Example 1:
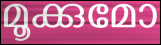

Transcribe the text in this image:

മൂക്കുമോ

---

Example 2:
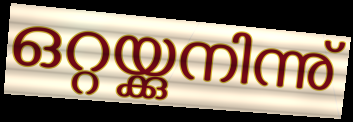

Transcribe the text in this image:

ഒറ്റയ്ക്കുനിന്നു്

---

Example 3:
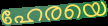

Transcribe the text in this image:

ഹേരയെ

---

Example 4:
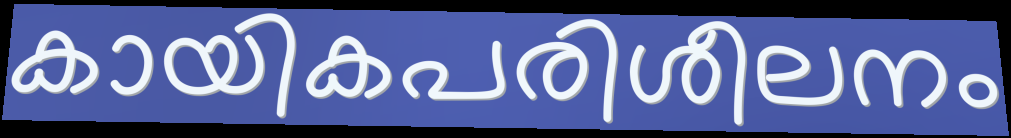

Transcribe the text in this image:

കായികപരിശീലനം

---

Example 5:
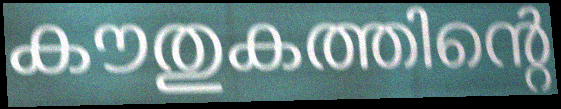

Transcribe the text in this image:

കൗതുകത്തിന്റെ